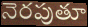
నెరపుతూ